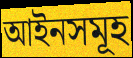
আইনসমূহ